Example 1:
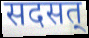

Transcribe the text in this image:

सदसत्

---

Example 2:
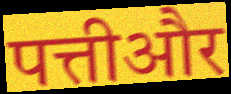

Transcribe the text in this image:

पत्तीऔर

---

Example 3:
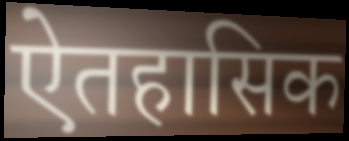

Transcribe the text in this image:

ऐतहासिक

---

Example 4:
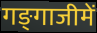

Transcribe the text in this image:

गङ्गाजीमें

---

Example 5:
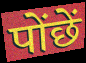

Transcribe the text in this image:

पोंछें